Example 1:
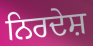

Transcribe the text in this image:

ਨਿਰਦੇਸ਼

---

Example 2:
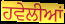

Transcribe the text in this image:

ਹਵੇਲੀਆਂ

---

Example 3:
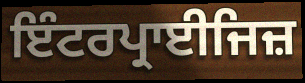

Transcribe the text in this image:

ਇੰਟਰਪ੍ਰਾਈਜਿਜ਼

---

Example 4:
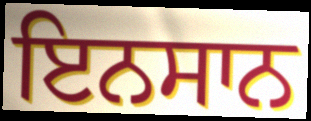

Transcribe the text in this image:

ਇਨਸਾਨ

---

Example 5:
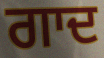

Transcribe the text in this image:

ਗਾਦ